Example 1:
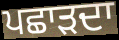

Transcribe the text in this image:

ਪਛਾੜਦਾ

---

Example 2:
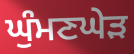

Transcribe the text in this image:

ਘੁੰਮਣਘੇੜ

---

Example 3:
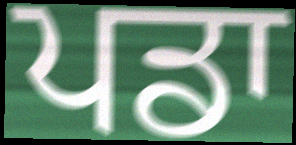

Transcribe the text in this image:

ਪਡਾ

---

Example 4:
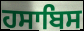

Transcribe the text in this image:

ਹਸਾਬਿਸ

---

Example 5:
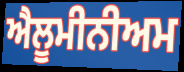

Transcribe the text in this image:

ਐਲੂਮੀਨੀਅਮ